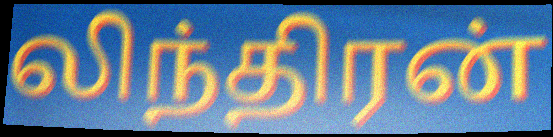
லிந்திரன்